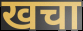
खचा